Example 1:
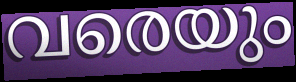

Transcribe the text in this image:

വരെയും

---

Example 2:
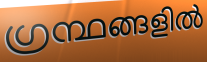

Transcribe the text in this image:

ഗ്രന്ഥങ്ങളിൽ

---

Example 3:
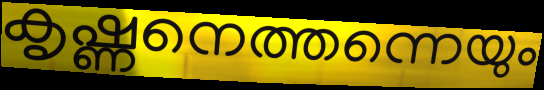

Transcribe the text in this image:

കൃഷ്ണനെത്തന്നെയും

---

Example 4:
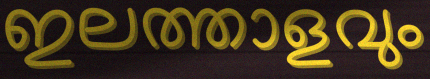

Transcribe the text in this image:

ഇലത്താളവും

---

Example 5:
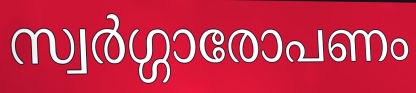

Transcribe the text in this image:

സ്വർഗ്ഗാരോപണം